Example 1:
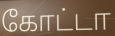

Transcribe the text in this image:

கோட்டா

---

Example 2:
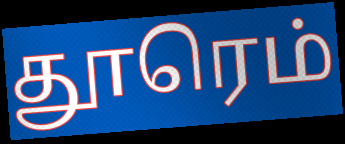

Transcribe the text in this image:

தூரெம்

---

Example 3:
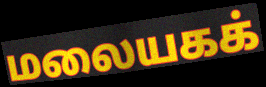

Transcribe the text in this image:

மலையகக்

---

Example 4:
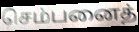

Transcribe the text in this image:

செம்பனைத்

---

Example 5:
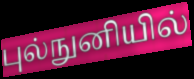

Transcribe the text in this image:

புல்நுனியில்